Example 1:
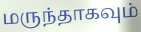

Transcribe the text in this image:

மருந்தாகவும்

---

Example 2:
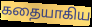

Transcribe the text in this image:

கதையாகிய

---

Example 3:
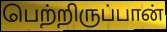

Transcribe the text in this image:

பெற்றிருப்பான்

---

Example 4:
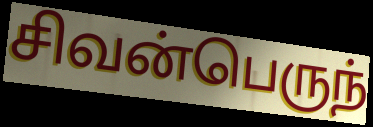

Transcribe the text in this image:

சிவன்பெருந்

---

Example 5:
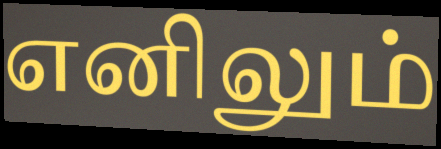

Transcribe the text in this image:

எனிலும்